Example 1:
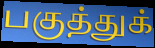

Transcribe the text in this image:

பகுத்துக்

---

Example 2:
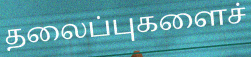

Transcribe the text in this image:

தலைப்புகளைச்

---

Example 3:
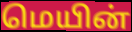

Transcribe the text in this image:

மெயின்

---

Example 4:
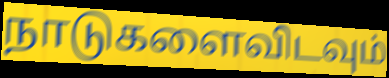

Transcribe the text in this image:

நாடுகளைவிடவும்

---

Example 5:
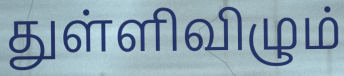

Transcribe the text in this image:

துள்ளிவிழும்